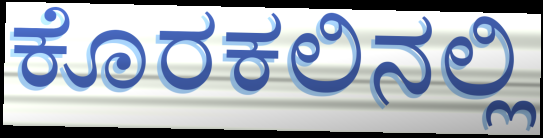
ಕೊರಕಲಿನಲ್ಲಿ